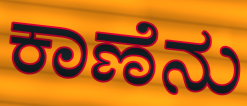
ಕಾಣೆನು